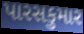
પારસકુમાર